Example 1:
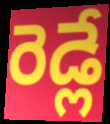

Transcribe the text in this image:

రెడ్లే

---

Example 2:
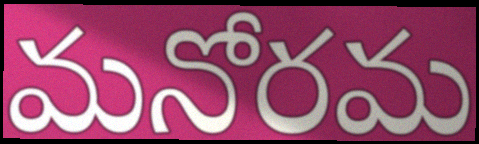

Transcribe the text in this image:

మనోరమ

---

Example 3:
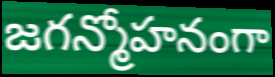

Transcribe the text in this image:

జగన్మోహనంగా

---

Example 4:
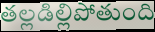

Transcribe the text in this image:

తల్లడిల్లిపోతుంది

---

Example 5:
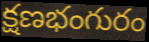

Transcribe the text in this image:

క్షణభంగురం